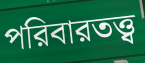
পরিবারতত্ত্ব